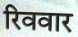
रिववार